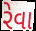
રેવા